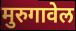
मुरुगावेल